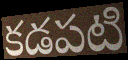
కడపటి